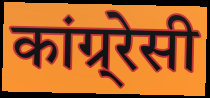
कांग्र्रेसी